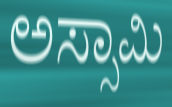
ಅಸ್ಸಾಮಿ